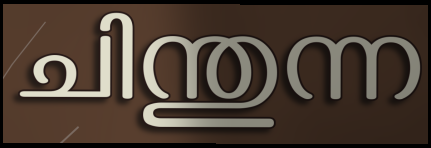
ചിന്തുന്ന